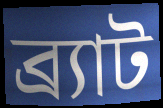
ব্র্যাট